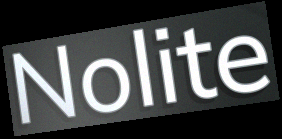
Nolite